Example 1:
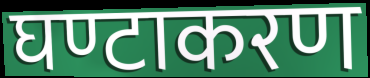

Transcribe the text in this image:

घण्टाकरण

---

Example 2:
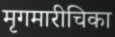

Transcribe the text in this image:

मृगमारीचिका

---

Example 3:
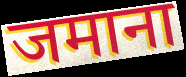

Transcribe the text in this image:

जमाना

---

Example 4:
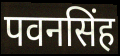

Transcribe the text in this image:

पवनसिंह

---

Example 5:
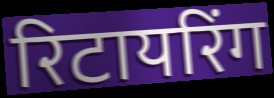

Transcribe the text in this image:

रिटायरिंग